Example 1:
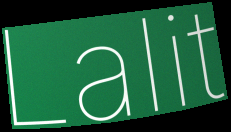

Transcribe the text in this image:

Lalit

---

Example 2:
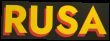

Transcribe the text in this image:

RUSA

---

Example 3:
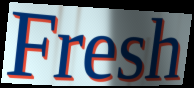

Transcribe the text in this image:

Fresh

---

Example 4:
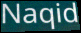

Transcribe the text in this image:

Naqid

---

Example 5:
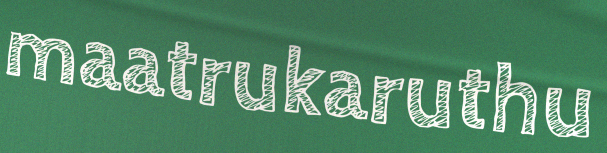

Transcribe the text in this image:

maatrukaruthu